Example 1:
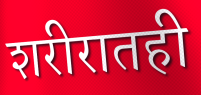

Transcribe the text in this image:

शरीरातही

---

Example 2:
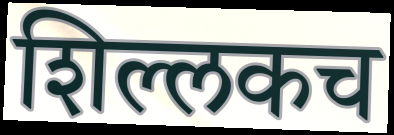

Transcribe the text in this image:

शिल्लकच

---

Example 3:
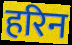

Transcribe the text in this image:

हरिन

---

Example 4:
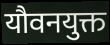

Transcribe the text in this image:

यौवनयुक्त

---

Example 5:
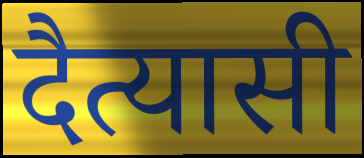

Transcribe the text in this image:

दैत्यासी